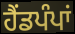
ਹੈਂਡਪੰਪਾਂ